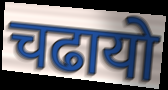
चढायो